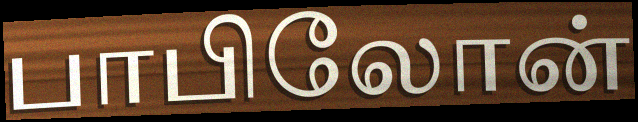
பாபிலோன்